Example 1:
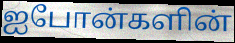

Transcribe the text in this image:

ஐபோன்களின்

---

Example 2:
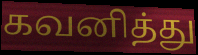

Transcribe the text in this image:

கவனித்து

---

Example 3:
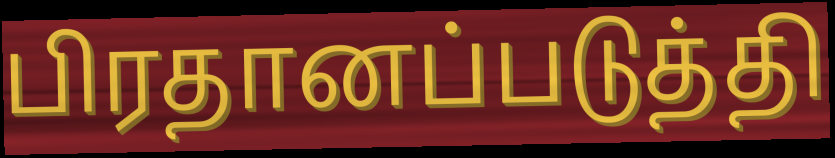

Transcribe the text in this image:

பிரதானப்படுத்தி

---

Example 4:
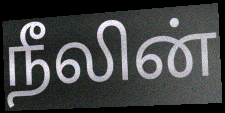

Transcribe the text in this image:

நீலின்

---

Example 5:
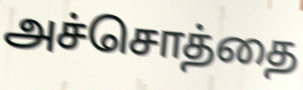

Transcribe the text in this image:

அச்சொத்தை